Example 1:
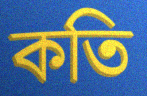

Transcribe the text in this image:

কতি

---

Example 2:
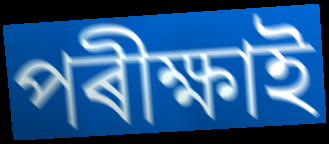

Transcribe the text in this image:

পৰীক্ষাই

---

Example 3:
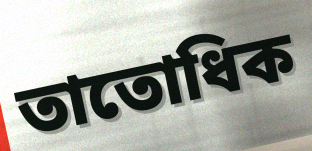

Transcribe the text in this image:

তাতোধিক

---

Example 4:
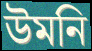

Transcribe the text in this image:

উমনি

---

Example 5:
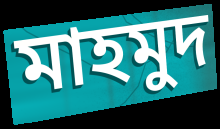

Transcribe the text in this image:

মাহমুদ